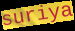
suriya